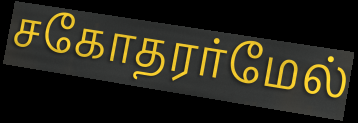
சகோதரர்மேல்